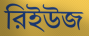
রিইউজ